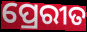
ପ୍ରେରୀତ